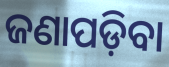
ଜଣାପଡ଼ିବା